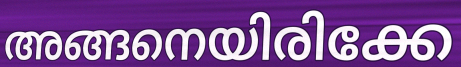
അങ്ങനെയിരിക്കേ